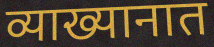
व्याख्यानात